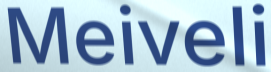
Meiveli